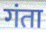
गंता